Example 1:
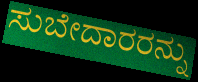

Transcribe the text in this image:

ಸುಬೇದಾರರನ್ನು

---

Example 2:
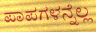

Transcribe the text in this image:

ಪಾಪಗಳನ್ನೆಲ್ಲ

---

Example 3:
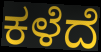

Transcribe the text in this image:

ಕಳೆದೆ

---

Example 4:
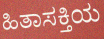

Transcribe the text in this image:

ಹಿತಾಸಕ್ತಿಯ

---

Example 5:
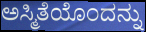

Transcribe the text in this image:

ಅಸ್ಮಿತೆಯೊಂದನ್ನು